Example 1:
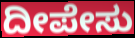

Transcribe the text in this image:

ದೀಪೇಸು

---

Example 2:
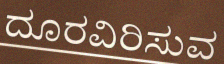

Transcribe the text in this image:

ದೂರವಿರಿಸುವ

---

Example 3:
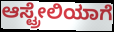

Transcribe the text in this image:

ಆಸ್ಟ್ರೇಲಿಯಾಗೆ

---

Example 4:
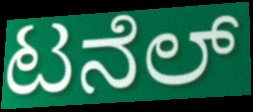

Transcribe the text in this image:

ಟನೆಲ್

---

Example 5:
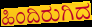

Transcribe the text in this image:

ಹಿಂದಿರುಗಿದ